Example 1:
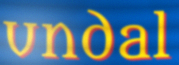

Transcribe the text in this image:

undal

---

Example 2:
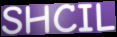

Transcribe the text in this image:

SHCIL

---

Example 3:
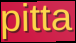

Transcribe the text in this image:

pitta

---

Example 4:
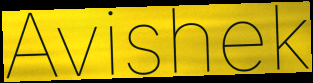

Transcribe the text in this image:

Avishek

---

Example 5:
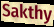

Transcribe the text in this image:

Sakthy